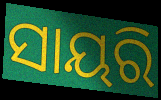
ସାୟରି